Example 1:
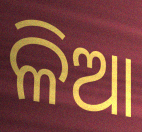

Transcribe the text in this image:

ଳିଆ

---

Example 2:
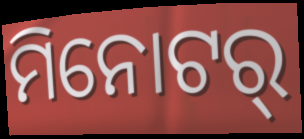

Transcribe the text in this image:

ମିନୋଟର୍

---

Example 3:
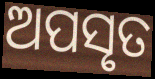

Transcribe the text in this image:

ଅପସୃତ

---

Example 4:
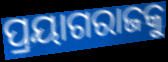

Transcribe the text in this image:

ପ୍ରୟାଗରାଜକୁ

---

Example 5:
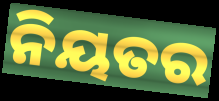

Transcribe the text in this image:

ନିୟତର